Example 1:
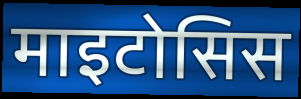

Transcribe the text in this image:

माइटोसिस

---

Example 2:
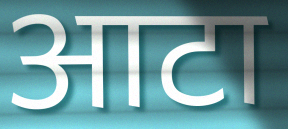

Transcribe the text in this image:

आटा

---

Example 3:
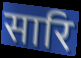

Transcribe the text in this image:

सारि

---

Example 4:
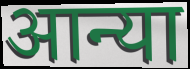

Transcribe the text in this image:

आन्या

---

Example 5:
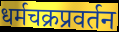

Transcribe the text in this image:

धर्मचक्रप्रवर्तन